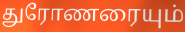
துரோணரையும்